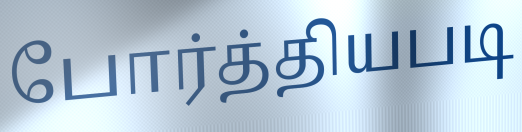
போர்த்தியபடி